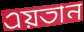
এয়তান